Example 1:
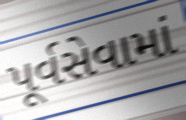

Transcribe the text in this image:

પૂર્વસેવામાં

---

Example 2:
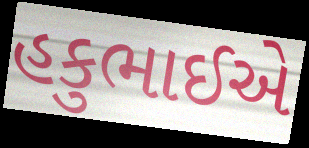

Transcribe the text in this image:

હકુભાઈએ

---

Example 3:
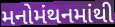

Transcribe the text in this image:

મનોમંથનમાંથી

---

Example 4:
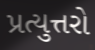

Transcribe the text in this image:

પ્રત્યુત્તરો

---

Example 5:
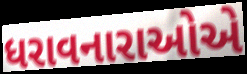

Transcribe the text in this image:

ધરાવનારાઓએ